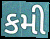
કમી